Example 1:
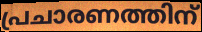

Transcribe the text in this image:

പ്രചാരണത്തിന്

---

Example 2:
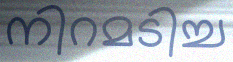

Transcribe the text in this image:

നിറമടിച്ച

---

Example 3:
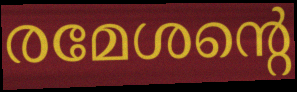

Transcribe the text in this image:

രമേശന്റെ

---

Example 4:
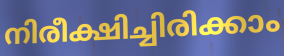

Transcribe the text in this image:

നിരീക്ഷിച്ചിരിക്കാം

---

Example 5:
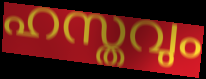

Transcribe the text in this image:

ഹസ്തവും